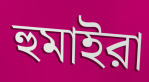
হুমাইরা